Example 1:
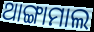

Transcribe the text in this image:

ଥାଙ୍ଗାମାଲ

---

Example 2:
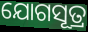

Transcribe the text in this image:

ଯୋଗସୂତ୍ର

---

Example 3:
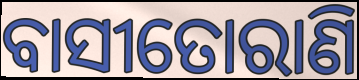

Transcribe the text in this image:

ବାସୀତୋରାଣି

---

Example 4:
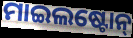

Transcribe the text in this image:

ମାଇଲଷ୍ଟୋନ୍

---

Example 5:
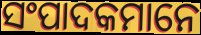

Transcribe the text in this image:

ସଂପାଦକମାନେ